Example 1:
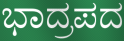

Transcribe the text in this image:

ಭಾದ್ರಪದ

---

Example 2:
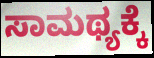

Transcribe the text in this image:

ಸಾಮಥ್ಯಕ್ಕೆ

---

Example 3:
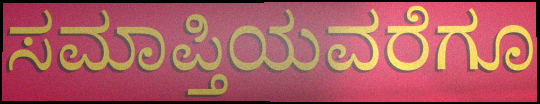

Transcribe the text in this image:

ಸಮಾಪ್ತಿಯವರೆಗೂ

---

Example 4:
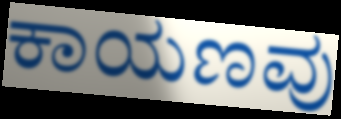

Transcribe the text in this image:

ಕಾಯಣವು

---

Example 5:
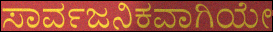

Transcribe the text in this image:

ಸಾರ್ವಜನಿಕವಾಗಿಯೇ